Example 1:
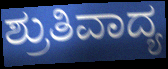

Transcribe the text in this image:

ಶ್ರುತಿವಾದ್ಯ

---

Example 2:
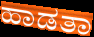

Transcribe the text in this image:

ಹಾಡತಾ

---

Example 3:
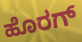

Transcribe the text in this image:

ಹೊರಗ್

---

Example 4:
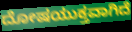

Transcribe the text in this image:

ದೋಷಯುಕ್ತವಾಗಿದೆ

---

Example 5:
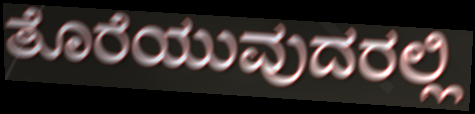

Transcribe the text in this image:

ತೊರೆಯುವುದರಲ್ಲಿ